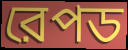
রেপড